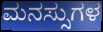
ಮನಸ್ಸುಗಳ